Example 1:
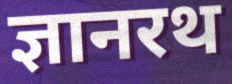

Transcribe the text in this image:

ज्ञानरथ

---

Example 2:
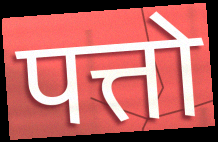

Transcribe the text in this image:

पत्तो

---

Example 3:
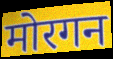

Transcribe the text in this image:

मोरगन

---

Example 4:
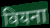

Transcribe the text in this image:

वियना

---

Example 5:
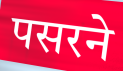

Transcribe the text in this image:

पसरने